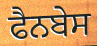
ਫੈਨਬੇਸ